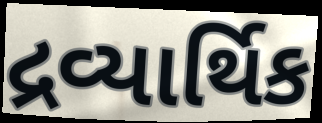
દ્રવ્યાર્થિક